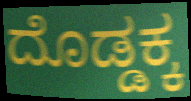
ದೊಡ್ಡಕ್ಕ